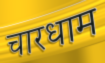
चारधाम